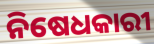
ନିଷେଧକାରୀ